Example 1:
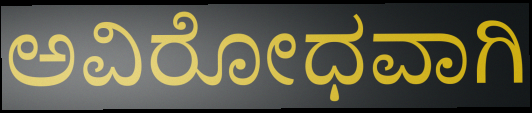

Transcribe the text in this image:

ಅವಿರೋಧವಾಗಿ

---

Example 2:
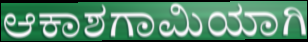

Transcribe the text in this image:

ಆಕಾಶಗಾಮಿಯಾಗಿ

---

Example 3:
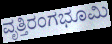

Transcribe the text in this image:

ವೃತ್ತಿರಂಗಭೂಮಿ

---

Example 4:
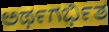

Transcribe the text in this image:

ಅರ್ಥಗರ್ಭಿತ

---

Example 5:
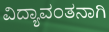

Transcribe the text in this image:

ವಿದ್ಯಾವಂತನಾಗಿ